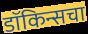
डॉकिन्सचा